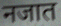
नजात